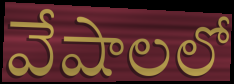
వేషాలలో